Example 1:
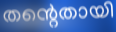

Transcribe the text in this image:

തന്റെതായി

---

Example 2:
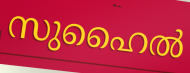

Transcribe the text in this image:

സുഹൈൽ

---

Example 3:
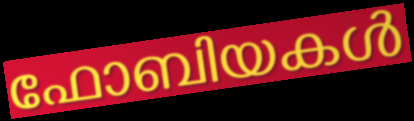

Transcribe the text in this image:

ഫോബിയകൾ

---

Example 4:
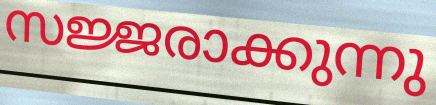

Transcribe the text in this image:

സജ്ജരാക്കുന്നു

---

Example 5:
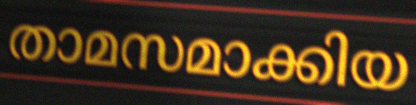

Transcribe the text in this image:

താമസമാക്കിയ